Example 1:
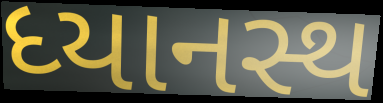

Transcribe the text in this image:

ધ્યાનસ્થ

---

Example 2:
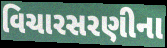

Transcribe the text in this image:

વિચારસરણીના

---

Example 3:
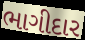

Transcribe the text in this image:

ભાગીદાર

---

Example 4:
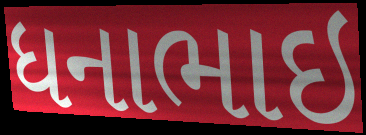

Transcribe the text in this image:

ધનાભાઇ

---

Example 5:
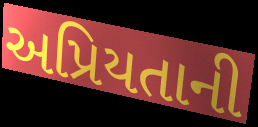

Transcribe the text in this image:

અપ્રિયતાની